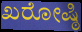
ಖರೋಷ್ಠಿ